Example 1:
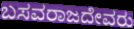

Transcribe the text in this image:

ಬಸವರಾಜದೇವರು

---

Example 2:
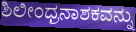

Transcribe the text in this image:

ಶಿಲೀಂಧ್ರನಾಶಕವನ್ನು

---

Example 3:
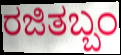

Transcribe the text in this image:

ರಜಿತಬ್ಬಂ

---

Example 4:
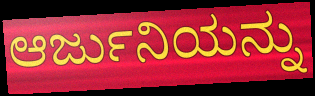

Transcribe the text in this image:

ಆರ್ಜುನಿಯನ್ನು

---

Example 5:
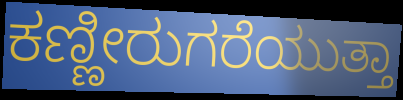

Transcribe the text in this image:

ಕಣ್ಣೀರುಗರೆಯುತ್ತಾ